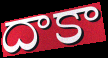
దాకా